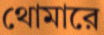
থোমারে